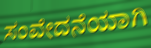
ಸಂವೇದನೆಯಾಗಿ